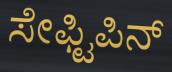
ಸೇಫ್ಟಿಪಿನ್